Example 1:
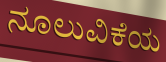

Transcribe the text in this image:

ನೂಲುವಿಕೆಯ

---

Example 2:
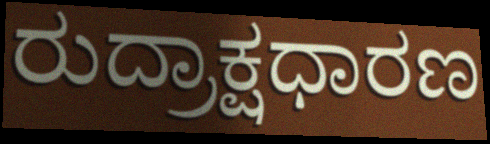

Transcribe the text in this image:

ರುದ್ರಾಕ್ಷಧಾರಣ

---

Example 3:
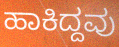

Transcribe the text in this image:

ಹಾಕಿದ್ದವು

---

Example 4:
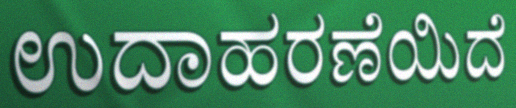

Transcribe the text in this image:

ಉದಾಹರಣೆಯಿದೆ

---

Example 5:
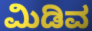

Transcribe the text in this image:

ಮಿಡಿವ